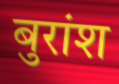
बुरांश